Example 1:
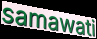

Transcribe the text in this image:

samawati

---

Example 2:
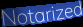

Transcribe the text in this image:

Notarized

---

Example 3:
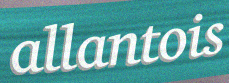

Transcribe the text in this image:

allantois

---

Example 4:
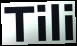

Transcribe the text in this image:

Tili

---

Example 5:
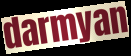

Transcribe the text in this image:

darmyan